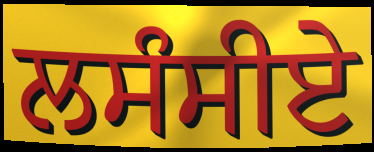
ਲਸੰਸੀਏ